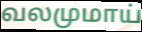
வலமுமாய்